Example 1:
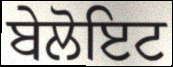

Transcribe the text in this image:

ਬੇਲੋਇਟ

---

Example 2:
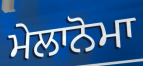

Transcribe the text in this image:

ਮੇਲਾਨੋਮਾ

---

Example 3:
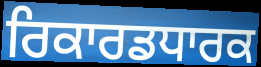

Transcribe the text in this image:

ਰਿਕਾਰਡਧਾਰਕ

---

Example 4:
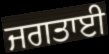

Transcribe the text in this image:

ਜਗਤਾਈ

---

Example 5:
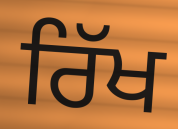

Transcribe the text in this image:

ਰਿੱਖ